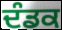
ਦੰਡਕ